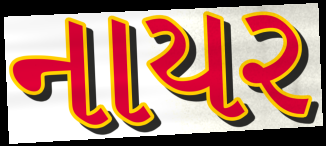
નાયર